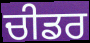
ਚੀਡਰ